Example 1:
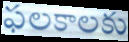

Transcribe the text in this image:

ఫలకాలకు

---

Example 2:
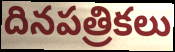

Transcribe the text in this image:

దినపత్రికలు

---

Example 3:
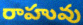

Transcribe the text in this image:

రాహువు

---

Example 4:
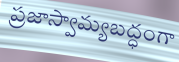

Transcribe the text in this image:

ప్రజాస్వామ్యబద్ధంగా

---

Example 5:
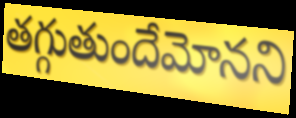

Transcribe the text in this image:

తగ్గుతుందేమోనని